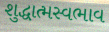
શુદ્ધાત્મસ્વભાવ